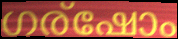
ഗര്ഷോം